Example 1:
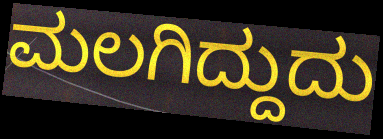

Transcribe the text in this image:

ಮಲಗಿದ್ದುದು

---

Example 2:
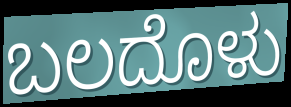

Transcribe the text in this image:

ಬಲದೊಳು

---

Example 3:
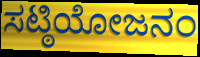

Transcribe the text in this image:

ಸಟ್ಠಿಯೋಜನಂ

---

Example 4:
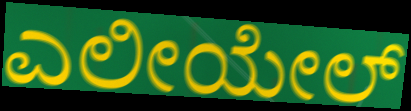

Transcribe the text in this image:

ಎಲೀಯೇಲ್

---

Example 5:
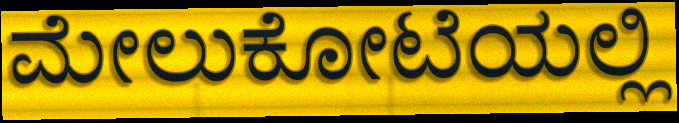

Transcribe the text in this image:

ಮೇಲುಕೋಟೆಯಲ್ಲಿ